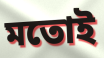
মতোই